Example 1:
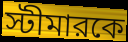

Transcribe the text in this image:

স্টীমারকে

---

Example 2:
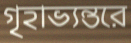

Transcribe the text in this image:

গৃহাভ্যন্তরে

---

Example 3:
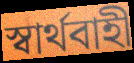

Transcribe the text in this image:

স্বার্থবাহী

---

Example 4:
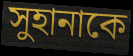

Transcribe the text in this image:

সুহানাকে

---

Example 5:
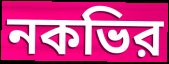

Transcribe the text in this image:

নকভির